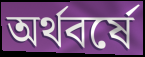
অর্থবর্ষে